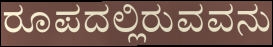
ರೂಪದಲ್ಲಿರುವವನು